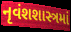
નૃવંશશાસ્ત્રમાં